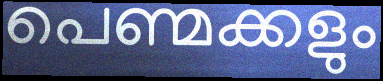
പെണ്മക്കളും